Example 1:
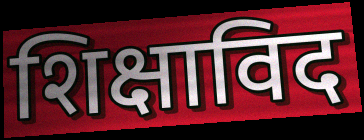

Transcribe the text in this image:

शिक्षाविद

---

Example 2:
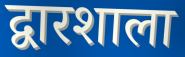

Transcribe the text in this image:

द्वारशाला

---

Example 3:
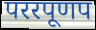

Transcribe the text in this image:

पररपूणप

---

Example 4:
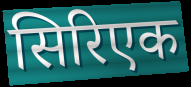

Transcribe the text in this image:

सिरिएक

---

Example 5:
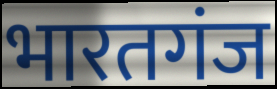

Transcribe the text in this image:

भारतगंज